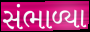
સંભાળ્યા